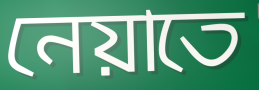
নেয়াতে